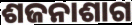
ଶଜନାଶାଗ